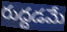
రుద్దడమే